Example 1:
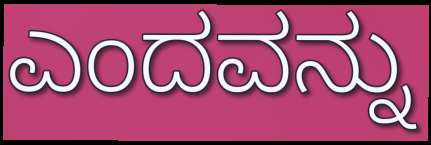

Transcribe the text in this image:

ಎಂದವನ್ನು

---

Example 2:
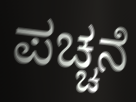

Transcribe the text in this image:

ಪಚ್ಚನೆ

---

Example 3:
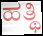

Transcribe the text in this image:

ಹತ್ಥಿ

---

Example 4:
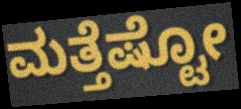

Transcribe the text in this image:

ಮತ್ತೆಷ್ಟೋ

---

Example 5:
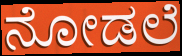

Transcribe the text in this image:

ನೋಡಲೆ